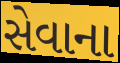
સેવાના